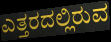
ಎತ್ತರದಲ್ಲಿರುವ